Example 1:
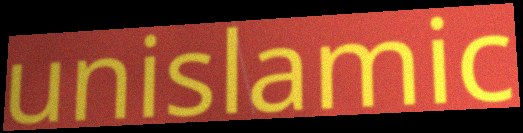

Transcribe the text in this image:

unislamic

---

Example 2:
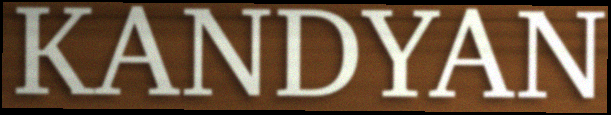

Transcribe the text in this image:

KANDYAN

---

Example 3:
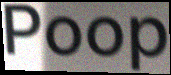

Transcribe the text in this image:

Poop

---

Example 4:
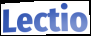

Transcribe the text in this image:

Lectio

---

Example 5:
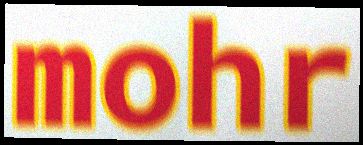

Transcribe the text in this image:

mohr